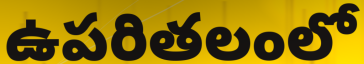
ఉపరితలంలో